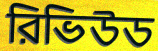
রিভিউড